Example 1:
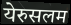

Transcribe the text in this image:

येरुसलम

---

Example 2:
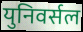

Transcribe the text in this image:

युनिवर्सल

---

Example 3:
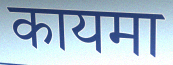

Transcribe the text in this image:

कायमा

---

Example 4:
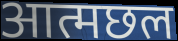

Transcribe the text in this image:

आत्मछल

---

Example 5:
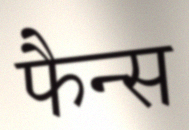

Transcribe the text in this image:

फैन्स